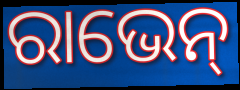
ରାଭେନ୍